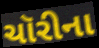
ચૉરીના